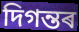
দিগন্তৰ